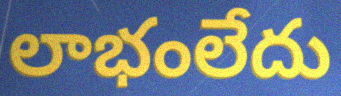
లాభంలేదు